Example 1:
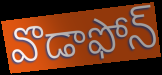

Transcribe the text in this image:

వొడాఫోన్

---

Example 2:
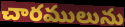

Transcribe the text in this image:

చారములును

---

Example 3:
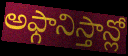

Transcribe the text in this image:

అఫ్గానిస్తాన్లో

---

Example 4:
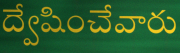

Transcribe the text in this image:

ద్వేషించేవారు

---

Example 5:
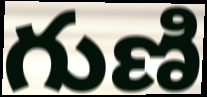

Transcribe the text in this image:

గుణి